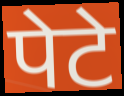
पेटे